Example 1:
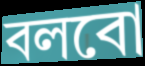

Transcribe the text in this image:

বলবো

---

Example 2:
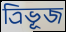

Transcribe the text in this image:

ত্ৰিভূজ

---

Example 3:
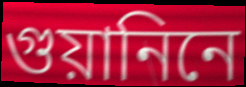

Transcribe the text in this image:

গুয়ানিনে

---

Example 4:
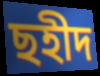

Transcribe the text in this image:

ছহীদ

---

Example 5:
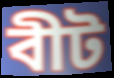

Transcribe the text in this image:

বীট